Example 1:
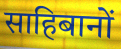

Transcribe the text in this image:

साहिबानों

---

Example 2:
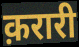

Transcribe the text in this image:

क़रारी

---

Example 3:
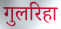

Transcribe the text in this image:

गुलरिहा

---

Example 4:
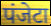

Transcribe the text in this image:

पंजेटा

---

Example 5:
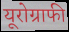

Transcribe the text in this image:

यूरोग्राफी